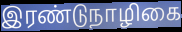
இரண்டுநாழிகை